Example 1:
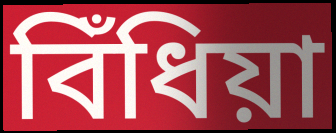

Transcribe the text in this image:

বিঁধিয়া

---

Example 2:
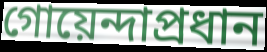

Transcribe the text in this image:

গোয়েন্দাপ্রধান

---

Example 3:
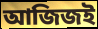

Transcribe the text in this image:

আজিজই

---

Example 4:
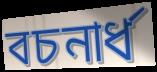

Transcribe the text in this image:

বচনার্ধ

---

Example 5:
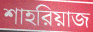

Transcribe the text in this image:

শাহরিয়াজ